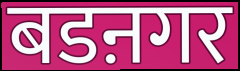
बडऩगर